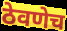
ठेवणेच